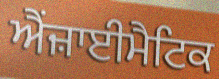
ਐਂਜ਼ਾਈਮੈਟਿਕ